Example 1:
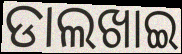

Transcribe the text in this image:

ଡାଲଖାଇ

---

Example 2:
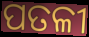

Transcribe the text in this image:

ପତଳୀ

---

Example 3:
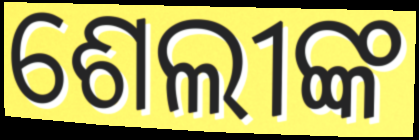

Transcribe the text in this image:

ଶେଲୀଙ୍କ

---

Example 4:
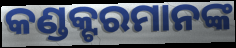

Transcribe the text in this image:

କଣ୍ଡକ୍ଟରମାନଙ୍କ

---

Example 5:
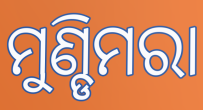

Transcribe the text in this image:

ମୁଣ୍ଡିମରା